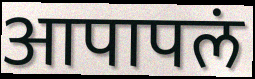
आपापलं